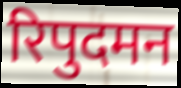
रिपुदमन